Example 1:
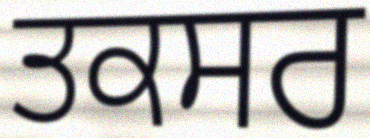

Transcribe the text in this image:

ਤਕਸਰ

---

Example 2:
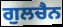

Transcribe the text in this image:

ਗੁਲਚੈਨ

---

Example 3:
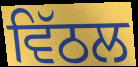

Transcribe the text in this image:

ਵਿੱਠਲ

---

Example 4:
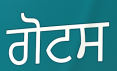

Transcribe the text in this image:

ਗੋਟਸ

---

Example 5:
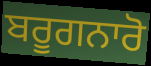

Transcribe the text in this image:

ਬਰੂਗਨਾਰੋ